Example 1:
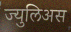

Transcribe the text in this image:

ज्युलिअस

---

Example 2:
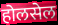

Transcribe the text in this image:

होलसेल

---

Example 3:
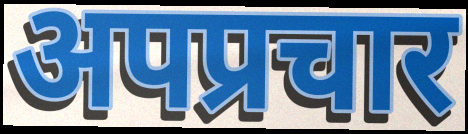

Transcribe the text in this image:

अपप्रचार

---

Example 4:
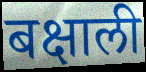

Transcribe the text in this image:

बक्षाली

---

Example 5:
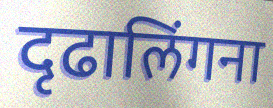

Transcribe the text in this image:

दृढालिंगना